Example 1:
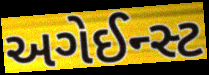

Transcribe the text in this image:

અગેઈન્સ્ટ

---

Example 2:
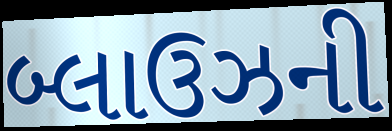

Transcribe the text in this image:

બ્લાઉઝની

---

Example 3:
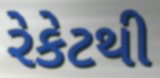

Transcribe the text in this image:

રેકેટથી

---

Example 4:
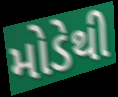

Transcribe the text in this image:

મોડેથી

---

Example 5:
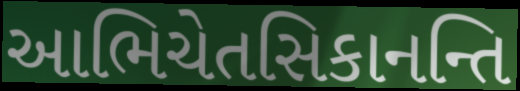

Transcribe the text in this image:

આભિચેતસિકાનન્તિ